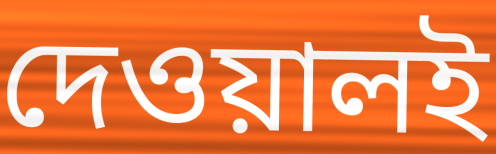
দেওয়ালই